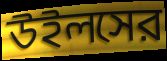
উইলসের